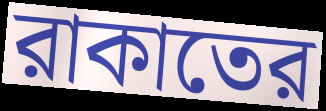
রাকাতের